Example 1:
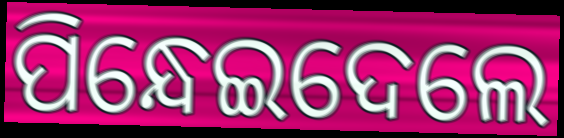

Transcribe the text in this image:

ପିନ୍ଧେଇଦେଲେ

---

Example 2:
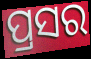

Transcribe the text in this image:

ପ୍ରସର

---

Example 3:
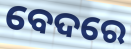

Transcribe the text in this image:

ବେଦରେ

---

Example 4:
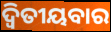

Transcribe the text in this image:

ଦ୍ୱିତୀୟବାର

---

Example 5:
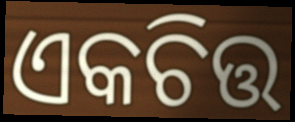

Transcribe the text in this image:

ଏକଚିତ୍ତ